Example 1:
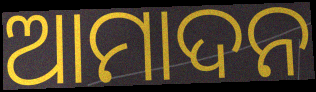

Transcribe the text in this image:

ଆମାଦନ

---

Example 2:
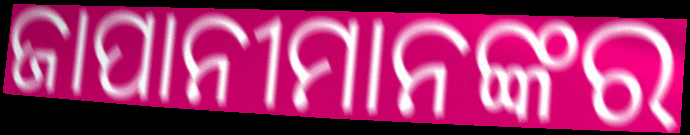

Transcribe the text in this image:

ଜାପାନୀମାନଙ୍କର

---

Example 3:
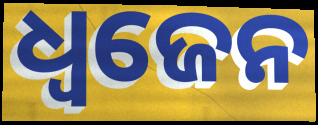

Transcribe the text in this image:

ଧ୍ଵଜେନ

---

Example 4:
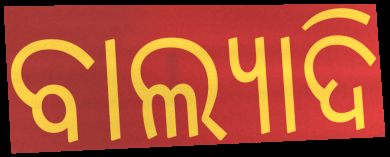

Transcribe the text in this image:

ବାଲ୍ୟାଦି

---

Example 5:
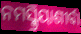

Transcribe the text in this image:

ନମସ୍କ୍ରିୟାଶୀର୍ବା